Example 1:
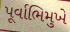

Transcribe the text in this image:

પૂર્વાભિમુખે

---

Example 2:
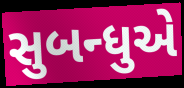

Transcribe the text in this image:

સુબન્ધુએ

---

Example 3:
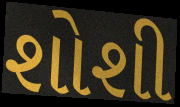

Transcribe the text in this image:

શોશી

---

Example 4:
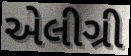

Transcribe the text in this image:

એલીગ્રી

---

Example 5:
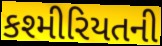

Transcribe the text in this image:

કશ્મીરિયતની